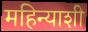
महिन्याशी